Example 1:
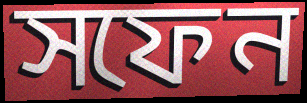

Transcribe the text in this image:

সফেন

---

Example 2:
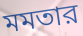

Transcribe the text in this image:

মমতার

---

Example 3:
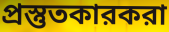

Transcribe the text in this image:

প্রস্তুতকারকরা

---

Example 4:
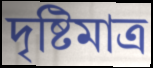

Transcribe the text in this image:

দৃষ্টিমাত্র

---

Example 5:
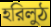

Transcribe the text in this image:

হরিলুঠ